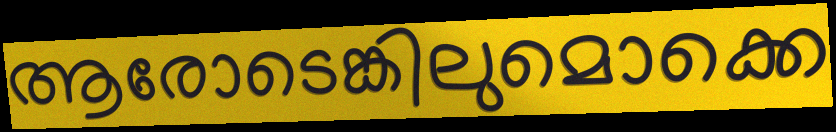
ആരോടെങ്കിലുമൊക്കെ